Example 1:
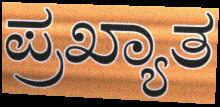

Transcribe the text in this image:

ಪ್ರಖ್ಯಾತ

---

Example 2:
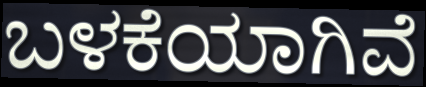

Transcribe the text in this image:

ಬಳಕೆಯಾಗಿವೆ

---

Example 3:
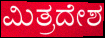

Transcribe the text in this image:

ಮಿತ್ರದೇಶ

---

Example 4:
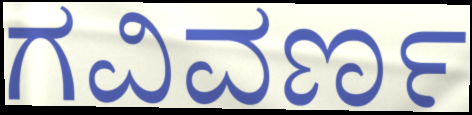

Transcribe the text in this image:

ಗವಿವರ್ಣ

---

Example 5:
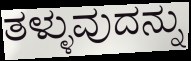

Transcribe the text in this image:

ತಳ್ಳುವುದನ್ನು